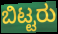
ಬಿಟ್ಟರು